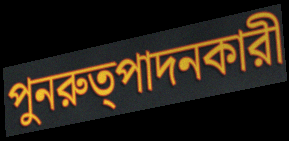
পুনরুত্পাদনকারী